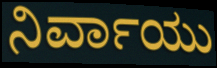
ನಿರ್ವಾಯು